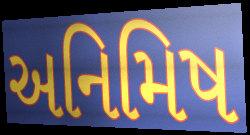
અનિમિષ